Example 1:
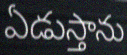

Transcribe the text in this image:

ఏడుస్తాను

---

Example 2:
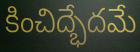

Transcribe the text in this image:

కించిద్భేదమే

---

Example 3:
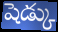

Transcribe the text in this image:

షెడ్కు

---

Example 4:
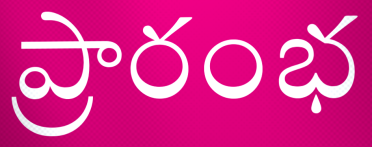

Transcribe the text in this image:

ప్రారంభ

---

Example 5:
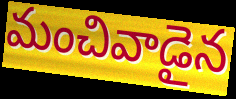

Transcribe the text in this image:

మంచివాడైన